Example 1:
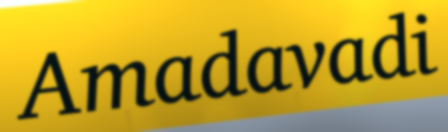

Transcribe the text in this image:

Amadavadi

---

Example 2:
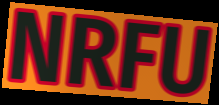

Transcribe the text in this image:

NRFU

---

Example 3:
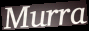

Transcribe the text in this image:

Murra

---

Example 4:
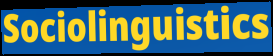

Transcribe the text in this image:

Sociolinguistics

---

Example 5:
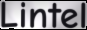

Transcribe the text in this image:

Lintel